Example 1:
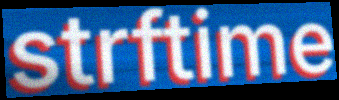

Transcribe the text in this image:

strftime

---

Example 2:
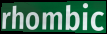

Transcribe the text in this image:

rhombic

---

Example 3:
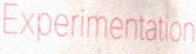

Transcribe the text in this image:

Experimentation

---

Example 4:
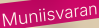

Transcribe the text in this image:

Muniisvaran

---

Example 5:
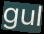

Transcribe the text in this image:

gul